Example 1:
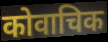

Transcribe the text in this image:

कोवाचिक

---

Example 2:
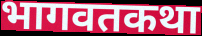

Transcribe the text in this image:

भागवतकथा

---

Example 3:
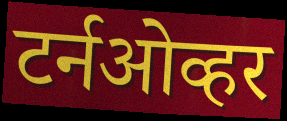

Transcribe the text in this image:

टर्नओव्हर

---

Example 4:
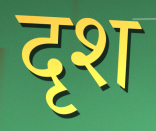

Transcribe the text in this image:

दृश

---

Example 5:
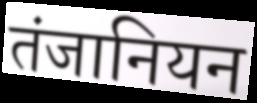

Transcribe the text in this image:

तंजानियन